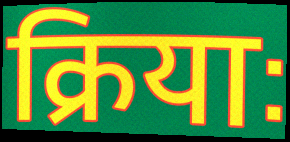
क्रियाः